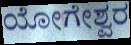
ಯೋಗೇಶ್ವರ